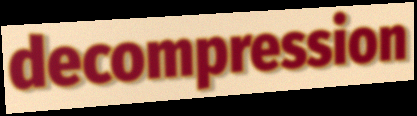
decompression